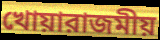
খোয়ারাজমীয়